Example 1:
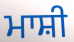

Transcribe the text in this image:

ਮਾਸ਼ੀ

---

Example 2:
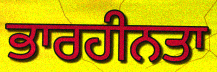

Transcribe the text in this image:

ਭਾਰਹੀਨਤਾ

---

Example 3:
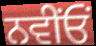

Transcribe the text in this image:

ਨਵੀਂਓਂ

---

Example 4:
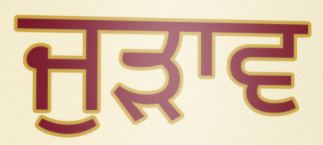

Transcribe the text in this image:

ਜੁੜਾਵ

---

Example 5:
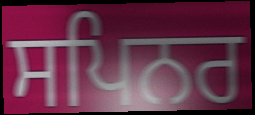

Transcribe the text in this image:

ਸਪਿਨਰ